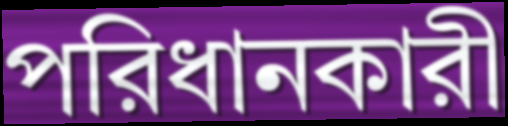
পরিধানকারী